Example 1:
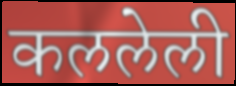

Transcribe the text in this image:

कललेली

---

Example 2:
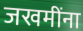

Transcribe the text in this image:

जखमींना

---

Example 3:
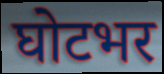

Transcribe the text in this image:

घोटभर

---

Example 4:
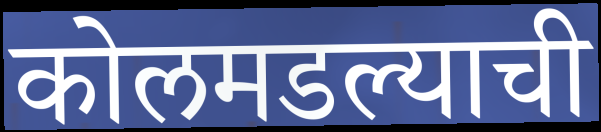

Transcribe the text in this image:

कोलमडल्याची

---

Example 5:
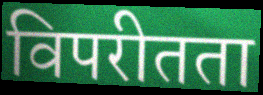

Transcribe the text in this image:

विपरीतता